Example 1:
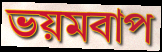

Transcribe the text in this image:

ভয়মবাপ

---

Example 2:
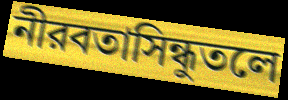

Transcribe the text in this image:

নীরবতাসিন্ধুতলে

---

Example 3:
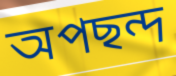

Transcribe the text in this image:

অপছন্দ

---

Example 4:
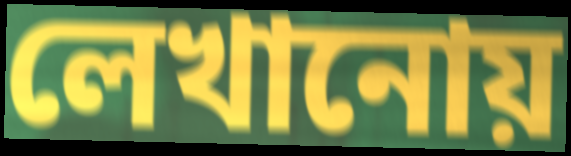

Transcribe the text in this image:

লেখানোয়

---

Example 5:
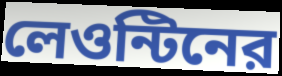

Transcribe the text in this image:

লেওন্টিনের